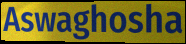
Aswaghosha